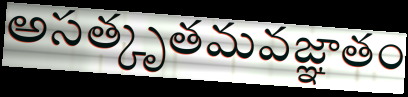
అసత్కృతమవజ్ఞాతం